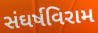
સંઘર્ષવિરામ